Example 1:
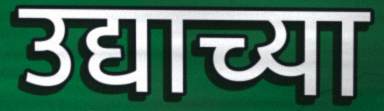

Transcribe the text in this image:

उद्याच्या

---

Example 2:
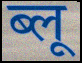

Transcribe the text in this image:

ब्लू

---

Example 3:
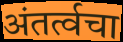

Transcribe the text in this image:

अंतर्त्वचा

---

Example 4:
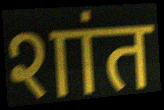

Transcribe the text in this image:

शांत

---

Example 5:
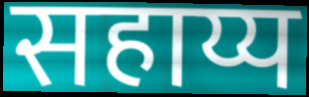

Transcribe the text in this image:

सहाय्य